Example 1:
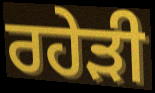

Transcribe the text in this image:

ਰਹੇੜੀ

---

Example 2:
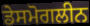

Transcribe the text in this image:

ਡੇਸਮੋਗਲੀਨ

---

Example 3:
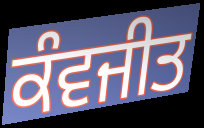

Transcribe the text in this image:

ਕੰਵਜੀਤ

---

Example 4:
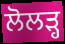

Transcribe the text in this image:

ਲੋਲੜ੍ਹ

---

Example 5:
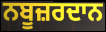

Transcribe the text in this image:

ਨਬੂਜ਼ਰਦਾਨ